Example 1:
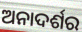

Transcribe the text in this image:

ଅନାଦର୍ଶର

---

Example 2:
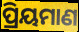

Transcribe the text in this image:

ପ୍ରିୟମାଣ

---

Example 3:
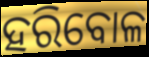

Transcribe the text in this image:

ହରିବୋଳ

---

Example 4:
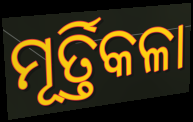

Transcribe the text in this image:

ମୂର୍ତ୍ତିକଳା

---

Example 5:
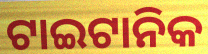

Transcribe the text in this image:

ଟାଇଟାନିକ